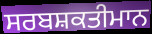
ਸਰਬਸ਼ਕਤੀਮਾਨ